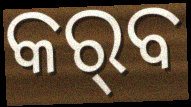
କର୍‌ବ